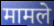
मामले